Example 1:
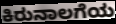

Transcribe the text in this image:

ಕಿರುನಾಲಗೆಯ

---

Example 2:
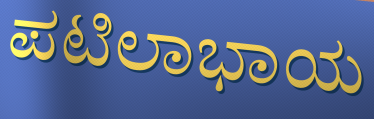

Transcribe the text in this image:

ಪಟಿಲಾಭಾಯ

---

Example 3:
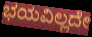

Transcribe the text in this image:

ಭಯವಿಲ್ಲದೇ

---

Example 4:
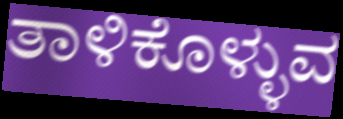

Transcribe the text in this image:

ತಾಳಿಕೊಳ್ಳುವ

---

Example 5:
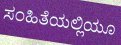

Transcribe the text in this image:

ಸಂಹಿತೆಯಲ್ಲಿಯೂ